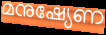
മനുഷ്യേണ